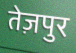
तेज़पुर